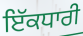
ਇੱਕਧਾਰੀ